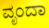
ವೃಂದಾ